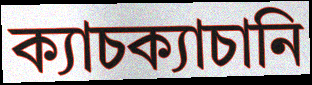
ক্যাচক্যাচানি